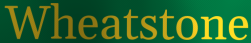
Wheatstone